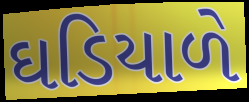
ઘડિયાળે